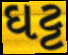
ઘટ્ટ